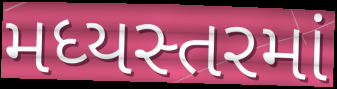
મધ્યસ્તરમાં